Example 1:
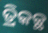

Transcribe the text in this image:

ତ୍ରିକଚ୍ଛ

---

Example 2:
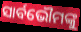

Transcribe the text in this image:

ସାର୍ବଭୌମଙ୍କୁ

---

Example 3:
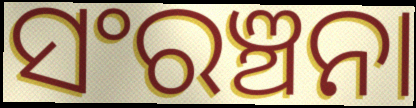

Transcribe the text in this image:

ସଂରଞ୍ଚନା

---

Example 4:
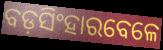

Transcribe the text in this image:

ବଡ଼ସିଂହାରବେଳେ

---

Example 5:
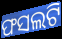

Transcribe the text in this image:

ଫସଲଟି